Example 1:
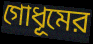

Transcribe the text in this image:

গোধূমের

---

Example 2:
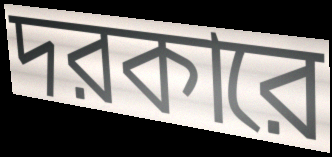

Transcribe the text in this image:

দরকারে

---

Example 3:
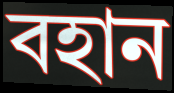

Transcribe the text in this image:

বহান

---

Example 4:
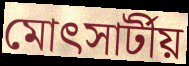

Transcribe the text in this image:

মোৎসার্টীয়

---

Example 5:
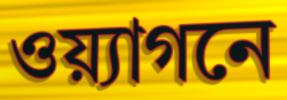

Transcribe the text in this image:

ওয়্যাগনে